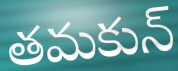
తమకున్